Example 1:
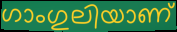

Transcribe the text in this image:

ഗാംഗുലിയാണ്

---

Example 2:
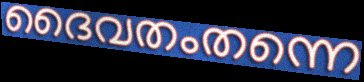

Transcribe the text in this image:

ദൈവതംതന്നെ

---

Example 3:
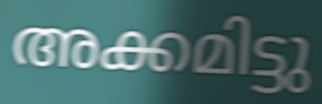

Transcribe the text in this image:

അക്കമിട്ടു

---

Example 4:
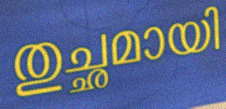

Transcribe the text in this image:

തുച്ഛമായി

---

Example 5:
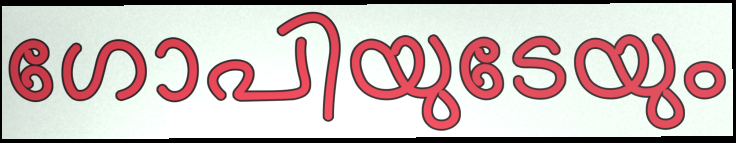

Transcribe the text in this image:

ഗോപിയുടേയും